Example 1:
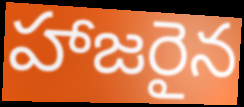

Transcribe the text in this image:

హాజరైన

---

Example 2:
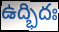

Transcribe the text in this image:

ఉద్భిదః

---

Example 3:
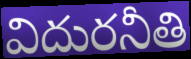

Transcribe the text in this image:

విదురనీతి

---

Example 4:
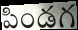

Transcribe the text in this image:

పిండగ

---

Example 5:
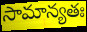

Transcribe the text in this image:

సామాన్యతః